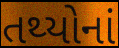
તથ્યોનાં